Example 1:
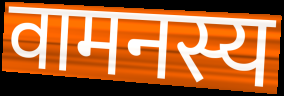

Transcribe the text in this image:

वामनस्य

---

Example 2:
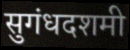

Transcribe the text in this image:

सुगंधदशमी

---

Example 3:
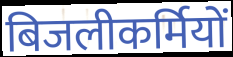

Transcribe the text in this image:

बिजलीकर्मियों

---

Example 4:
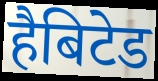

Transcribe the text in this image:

हैबिटेड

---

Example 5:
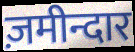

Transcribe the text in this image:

ज़मीन्दार